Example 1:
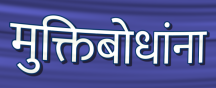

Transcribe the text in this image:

मुक्तिबोधांना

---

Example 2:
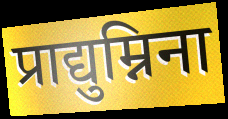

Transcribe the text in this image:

प्राद्युम्निना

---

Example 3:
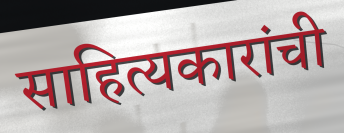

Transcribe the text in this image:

साहित्यकारांची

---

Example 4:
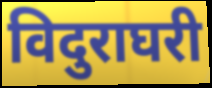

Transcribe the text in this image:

विदुराघरी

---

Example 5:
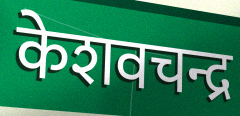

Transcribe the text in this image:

केशवचन्द्र